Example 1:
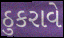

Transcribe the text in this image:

ઠુકરાવે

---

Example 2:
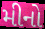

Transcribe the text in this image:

મીનો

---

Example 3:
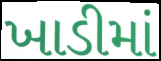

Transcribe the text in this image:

ખાડીમાં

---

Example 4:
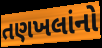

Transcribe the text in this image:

તણખલાંનો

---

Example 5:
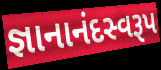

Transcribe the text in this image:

જ્ઞાનાનંદસ્વરૂપ